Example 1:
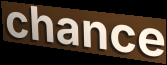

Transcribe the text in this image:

chance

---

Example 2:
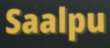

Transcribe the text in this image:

Saalpu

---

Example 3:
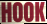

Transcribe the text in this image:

HOOK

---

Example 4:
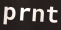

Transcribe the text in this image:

prnt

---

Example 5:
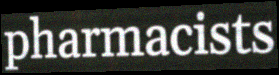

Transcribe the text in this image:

pharmacists